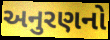
અનુરણનો